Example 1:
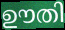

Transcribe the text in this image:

ഊതി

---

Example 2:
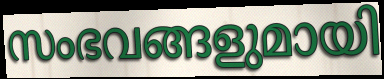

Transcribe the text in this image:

സംഭവങ്ങളുമായി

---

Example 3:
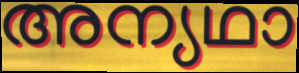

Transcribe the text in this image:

അന്യഥാ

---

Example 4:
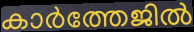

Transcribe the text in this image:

കാർത്തേജിൽ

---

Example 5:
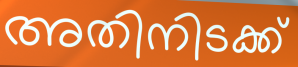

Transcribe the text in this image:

അതിനിടക്ക്